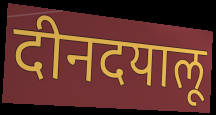
दीनदयालू